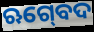
ଋଗ୍‍ବେଦ